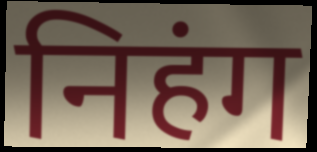
निहंग